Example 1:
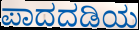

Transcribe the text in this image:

ಪಾದದಡಿಯ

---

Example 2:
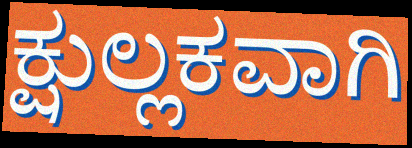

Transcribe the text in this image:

ಕ್ಷುಲ್ಲಕವಾಗಿ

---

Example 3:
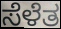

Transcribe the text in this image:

ಸೆಳೆತ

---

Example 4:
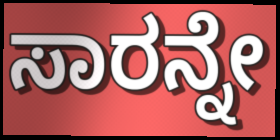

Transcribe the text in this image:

ಸಾರನ್ನೇ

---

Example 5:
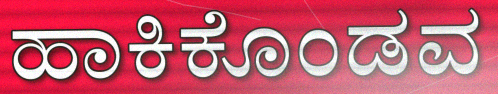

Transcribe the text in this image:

ಹಾಕಿಕೊಂಡವ